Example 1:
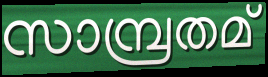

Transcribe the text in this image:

സാമ്പ്രതമ്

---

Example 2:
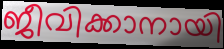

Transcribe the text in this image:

ജീവിക്കാനായി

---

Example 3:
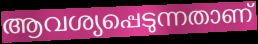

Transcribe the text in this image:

ആവശ്യപ്പെടുന്നതാണ്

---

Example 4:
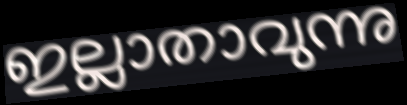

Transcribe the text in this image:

ഇല്ലാതാവുന്നു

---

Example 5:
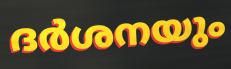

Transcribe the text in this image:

ദർശനയും